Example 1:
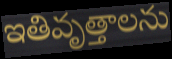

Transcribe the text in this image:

ఇతివృత్తాలను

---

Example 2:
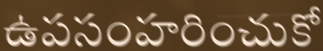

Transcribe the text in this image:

ఉపసంహరించుకో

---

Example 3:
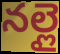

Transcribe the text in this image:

నల్లై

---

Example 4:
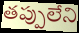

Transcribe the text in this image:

తప్పులేని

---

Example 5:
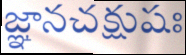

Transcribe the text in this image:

జ్ఞానచక్షుషః